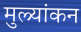
मुल्यांकन